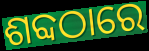
ଶବ୍ଦଠାରେ